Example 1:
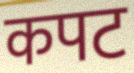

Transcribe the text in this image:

कपट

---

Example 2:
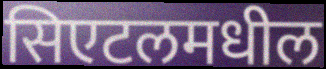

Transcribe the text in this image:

सिएटलमधील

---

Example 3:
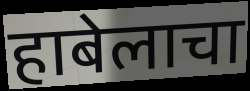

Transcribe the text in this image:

हाबेलाचा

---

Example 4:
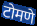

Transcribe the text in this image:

टोमणे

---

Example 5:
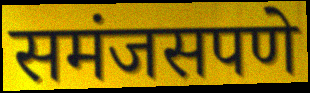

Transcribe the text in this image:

समंजसपणे